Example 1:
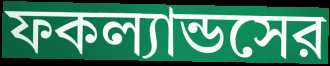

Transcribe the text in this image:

ফকল্যান্ডসের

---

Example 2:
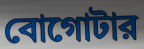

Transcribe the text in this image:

বোগোটার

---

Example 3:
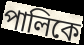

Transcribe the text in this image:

পালিকে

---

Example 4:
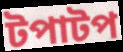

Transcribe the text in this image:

টপাটপ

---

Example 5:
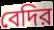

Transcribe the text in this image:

বেদির